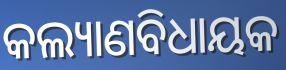
କଲ୍ୟାଣବିଧାୟକ